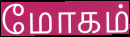
மோகம்